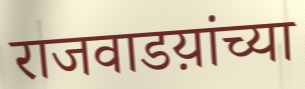
राजवाडय़ांच्या